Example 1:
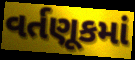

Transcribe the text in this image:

વર્તણૂકમાં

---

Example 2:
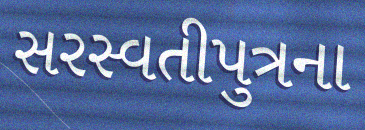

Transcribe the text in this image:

સરસ્વતીપુત્રના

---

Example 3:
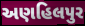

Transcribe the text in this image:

અણહિલપુર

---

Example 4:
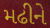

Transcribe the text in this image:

મઢીને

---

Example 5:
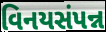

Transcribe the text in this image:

વિનયસંપન્ન